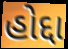
હોદ્દા